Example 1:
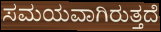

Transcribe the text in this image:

ಸಮಯವಾಗಿರುತ್ತದೆ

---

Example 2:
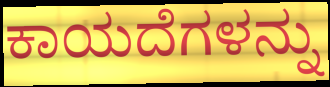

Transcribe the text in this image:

ಕಾಯದೆಗಳನ್ನು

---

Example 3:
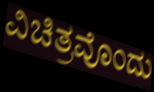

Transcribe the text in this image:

ವಿಚಿತ್ರವೊಂದು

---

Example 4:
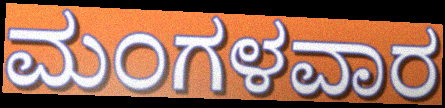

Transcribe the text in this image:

ಮಂಗಳವಾರ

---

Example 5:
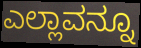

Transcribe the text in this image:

ಎಲ್ಲಾವನ್ನೂ